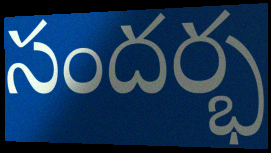
సందర్భ